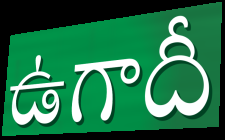
ఉగాదీ